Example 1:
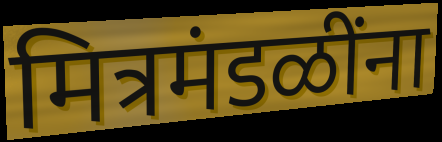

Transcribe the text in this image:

मित्रमंडळींना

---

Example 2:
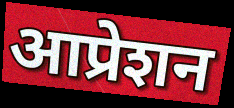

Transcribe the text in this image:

आप्रेशन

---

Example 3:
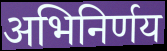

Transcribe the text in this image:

अभिनिर्णय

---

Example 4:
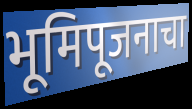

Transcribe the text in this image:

भूमिपूजनाचा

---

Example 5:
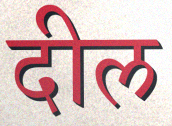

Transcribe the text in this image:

दील